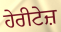
ਹੇਰੀਟੇਜ਼